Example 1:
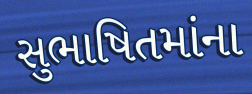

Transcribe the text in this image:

સુભાષિતમાંના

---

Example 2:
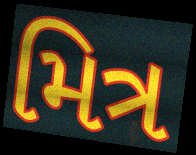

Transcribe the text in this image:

મિત્ર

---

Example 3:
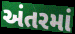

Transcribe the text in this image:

અંતરમાં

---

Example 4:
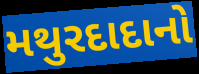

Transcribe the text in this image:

મથુરદાદાનો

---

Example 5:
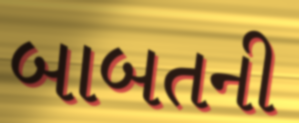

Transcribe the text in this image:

બાબતની